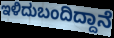
ಇಳಿದುಬಂದಿದ್ದಾನೆ